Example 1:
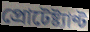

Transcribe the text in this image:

প্রোটেষ্ট্যাণ্ট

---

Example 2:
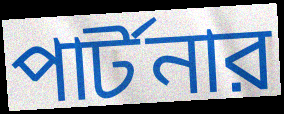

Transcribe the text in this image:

পার্টনার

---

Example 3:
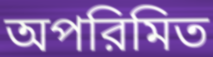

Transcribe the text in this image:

অপরিমিত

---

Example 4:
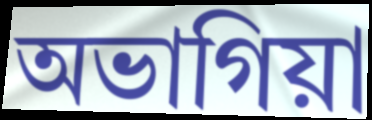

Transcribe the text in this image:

অভাগিয়া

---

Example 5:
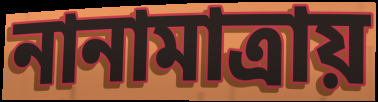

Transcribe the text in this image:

নানামাত্রায়